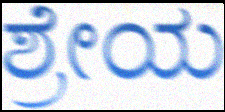
ಶ್ರೇಯ